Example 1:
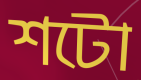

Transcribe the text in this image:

শটো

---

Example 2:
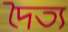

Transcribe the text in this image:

দৈত্য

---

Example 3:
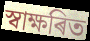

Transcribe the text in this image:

স্বাক্ষৰিত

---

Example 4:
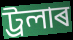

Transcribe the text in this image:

ট্ৰলাৰ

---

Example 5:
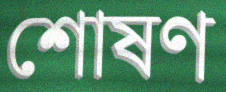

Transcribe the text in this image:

শোষণ